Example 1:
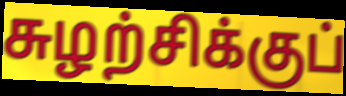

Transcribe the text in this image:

சுழற்சிக்குப்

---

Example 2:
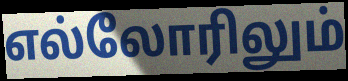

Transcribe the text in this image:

எல்லோரிலும்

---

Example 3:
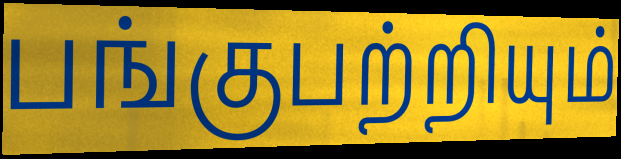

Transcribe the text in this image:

பங்குபற்றியும்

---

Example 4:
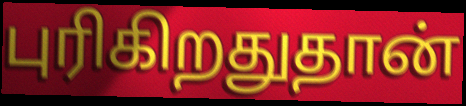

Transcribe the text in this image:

புரிகிறதுதான்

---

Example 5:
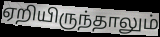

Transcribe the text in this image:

ஏறியிருந்தாலும்